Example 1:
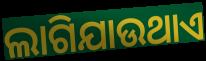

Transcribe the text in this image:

ଲାଗିଯାଉଥାଏ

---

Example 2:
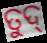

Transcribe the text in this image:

ତୁଦ୍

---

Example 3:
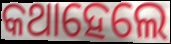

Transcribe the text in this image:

କଥାହେଲେ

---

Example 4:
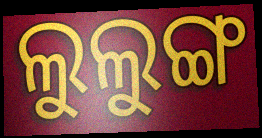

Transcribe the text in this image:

ଲୁଲୁଙ୍ଗ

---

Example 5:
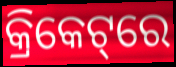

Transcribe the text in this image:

କ୍ରିକେଟ୍‌ରେ